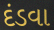
દંડવા